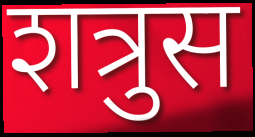
शत्रुस